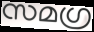
സമഗ്ര